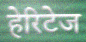
हेरिटेज